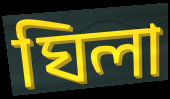
ঘিলা